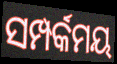
ସମ୍ପର୍କମୟ